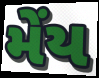
મેંય